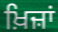
ਖ਼ਿਜ਼ਾਂ